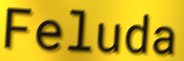
Feluda